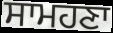
ਸਾਮਹਣਾ